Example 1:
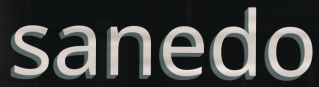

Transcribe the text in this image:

sanedo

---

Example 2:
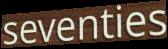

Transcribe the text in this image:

seventies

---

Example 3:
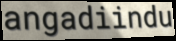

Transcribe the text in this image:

angadiindu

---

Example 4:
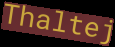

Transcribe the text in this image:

Thaltej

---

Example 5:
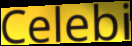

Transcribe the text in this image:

Celebi